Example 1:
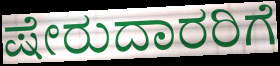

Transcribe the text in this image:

ಷೇರುದಾರರಿಗೆ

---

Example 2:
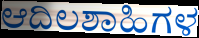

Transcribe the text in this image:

ಆದಿಲಶಾಹಿಗಳ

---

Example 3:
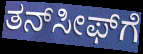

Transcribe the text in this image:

ತನ್‍ಸೀಫ್‍ಗೆ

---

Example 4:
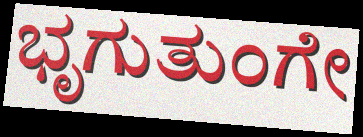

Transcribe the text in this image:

ಭೃಗುತುಂಗೇ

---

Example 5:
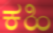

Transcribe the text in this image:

ಕಹಿ